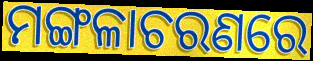
ମଙ୍ଗଳାଚରଣରେ